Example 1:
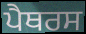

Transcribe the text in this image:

ਪੈਥਰਸ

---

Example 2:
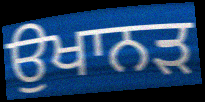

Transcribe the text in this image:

ਉਖਾਨੜ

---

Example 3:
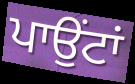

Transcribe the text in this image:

ਪਾਉਂਟਾਂ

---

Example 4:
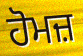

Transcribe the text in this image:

ਹੋਮਜ਼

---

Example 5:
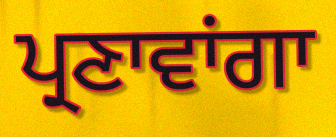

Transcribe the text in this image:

ਪ੍ਰਣਾਵਾਂਗਾ